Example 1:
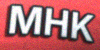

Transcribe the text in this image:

MHK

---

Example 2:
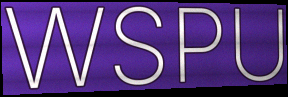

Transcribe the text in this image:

WSPU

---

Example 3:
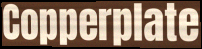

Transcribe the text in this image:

Copperplate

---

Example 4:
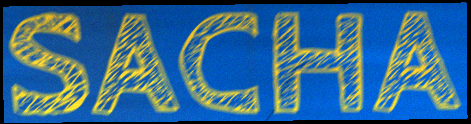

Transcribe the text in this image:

SACHA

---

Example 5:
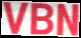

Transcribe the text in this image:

VBN